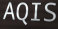
AQIS